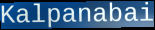
Kalpanabai